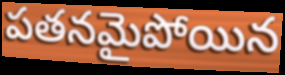
పతనమైపోయిన